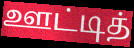
ஊட்டித்